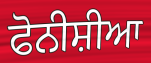
ਫੋਨੀਸ਼ੀਆ